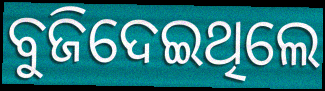
ବୁଜିଦେଇଥିଲେ